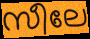
സീലേ